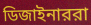
ডিজাইনাররা